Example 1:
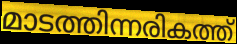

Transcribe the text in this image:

മാടത്തിന്നരികത്ത്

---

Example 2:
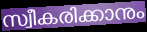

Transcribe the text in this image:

സ്വീകരിക്കാനും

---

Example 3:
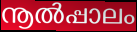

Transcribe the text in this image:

നൂൽപ്പാലം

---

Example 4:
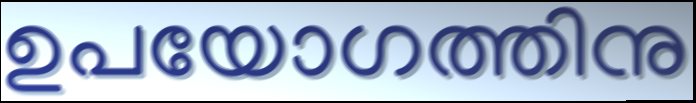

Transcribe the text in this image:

ഉപയോഗത്തിനു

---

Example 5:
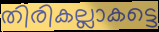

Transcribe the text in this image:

തിരികല്ലാകട്ടെ